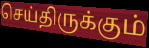
செய்திருக்கும்